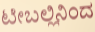
ಟೇಬಲ್ಲಿನಿಂದ